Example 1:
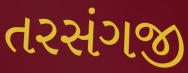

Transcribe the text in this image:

તરસંગજી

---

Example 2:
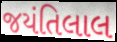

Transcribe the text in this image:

જયંતિલાલ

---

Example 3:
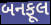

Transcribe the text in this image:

બનફૂલ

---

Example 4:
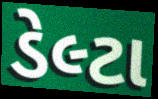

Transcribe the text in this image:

ડેલ્ટા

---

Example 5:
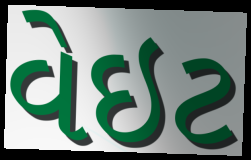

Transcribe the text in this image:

વેઇટ